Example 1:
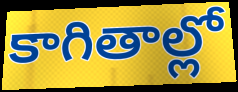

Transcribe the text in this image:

కాగితాల్లో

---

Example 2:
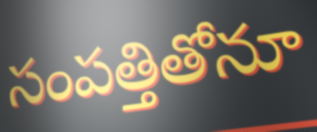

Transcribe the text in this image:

సంపత్తితోనూ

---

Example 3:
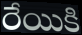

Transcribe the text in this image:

రేయికి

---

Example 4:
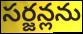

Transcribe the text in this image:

సర్జన్లను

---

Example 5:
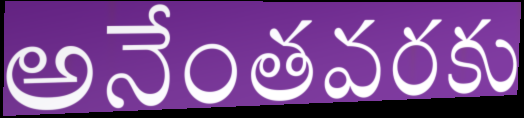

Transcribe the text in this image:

అనేంతవరకు